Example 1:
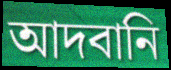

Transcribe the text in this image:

আদবানি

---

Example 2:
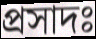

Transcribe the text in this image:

প্রসাদঃ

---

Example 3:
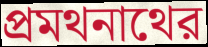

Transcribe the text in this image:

প্রমথনাথের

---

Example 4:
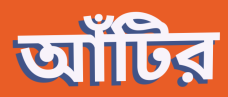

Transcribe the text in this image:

আঁটির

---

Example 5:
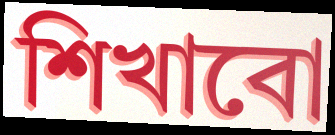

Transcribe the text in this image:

শিখাবো